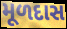
મૂળદાસ